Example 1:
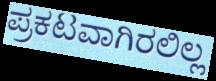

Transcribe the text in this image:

ಪ್ರಕಟವಾಗಿರಲಿಲ್ಲ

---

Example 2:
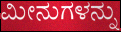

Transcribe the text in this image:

ಮೀನುಗಳನ್ನು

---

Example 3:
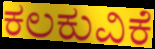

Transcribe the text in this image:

ಕಲಕುವಿಕೆ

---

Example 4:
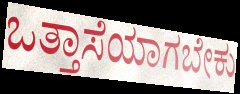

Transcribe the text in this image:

ಒತ್ತಾಸೆಯಾಗಬೇಕು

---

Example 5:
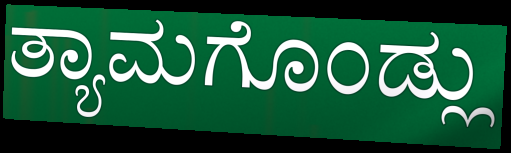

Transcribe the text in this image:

ತ್ಯಾಮಗೊಂಡ್ಲು